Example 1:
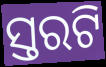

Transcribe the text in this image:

ସ୍ତରଟି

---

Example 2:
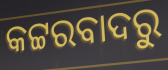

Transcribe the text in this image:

କଟ୍ଟରବାଦରୁ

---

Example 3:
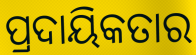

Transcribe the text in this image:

ପ୍ରଦାୟିକତାର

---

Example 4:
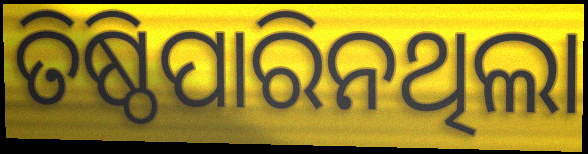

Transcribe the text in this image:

ତିଷ୍ଠିପାରିନଥିଲା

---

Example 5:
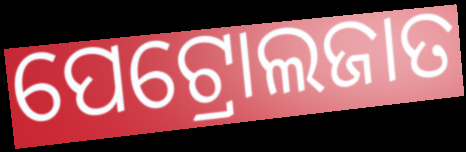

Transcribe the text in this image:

ପେଟ୍ରୋଲଜାତ